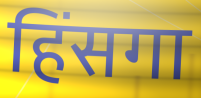
हिंसगा